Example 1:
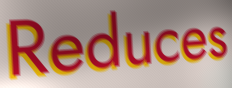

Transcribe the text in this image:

Reduces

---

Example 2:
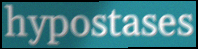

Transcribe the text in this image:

hypostases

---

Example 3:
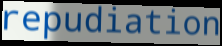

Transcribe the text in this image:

repudiation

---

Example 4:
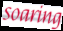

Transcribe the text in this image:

soaring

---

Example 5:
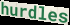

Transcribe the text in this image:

hurdles